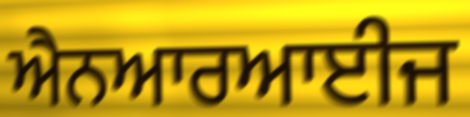
ਐਨਆਰਆਈਜ